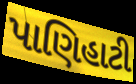
પાણિહાટી